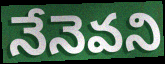
నేనెవని